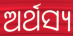
ଅର୍ଥସ୍ୟ